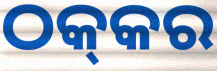
ଠକ୍‍କର